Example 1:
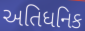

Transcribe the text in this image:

અતિધનિક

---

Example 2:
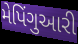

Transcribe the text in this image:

મેપિંગુઆરી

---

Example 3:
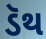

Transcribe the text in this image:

ડૅથ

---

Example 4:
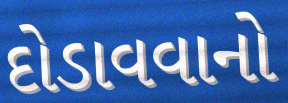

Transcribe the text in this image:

દોડાવવાનો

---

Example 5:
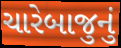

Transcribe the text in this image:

ચારેબાજુનું